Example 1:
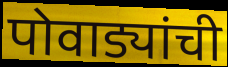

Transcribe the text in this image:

पोवाड्यांची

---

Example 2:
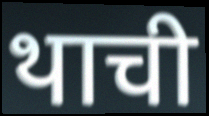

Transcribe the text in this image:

थाची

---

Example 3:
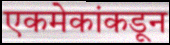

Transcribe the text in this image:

एकमेकांकडून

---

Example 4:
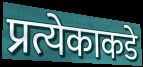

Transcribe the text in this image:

प्रत्येकाकडे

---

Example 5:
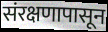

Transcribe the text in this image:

संरक्षणापासून